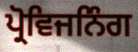
ਪ੍ਰੋਵਿਜਨਿੰਗ